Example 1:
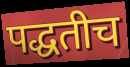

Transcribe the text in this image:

पद्धतीच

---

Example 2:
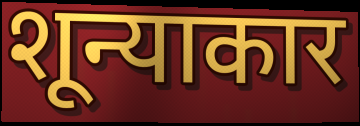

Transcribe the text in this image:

शून्याकार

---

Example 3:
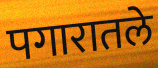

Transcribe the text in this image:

पगारातले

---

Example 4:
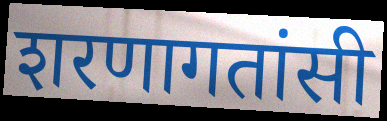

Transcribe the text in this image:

शरणागतांसी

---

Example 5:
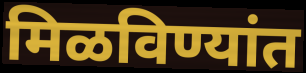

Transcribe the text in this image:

मिळविण्यांत